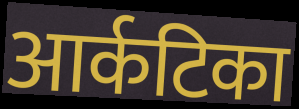
आर्कटिका